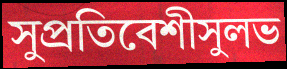
সুপ্রতিবেশীসুলভ